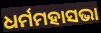
ଧର୍ମମହାସଭା